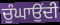
ਚੁੰਘਾਉਂਦੀ